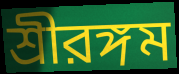
শ্রীরঙ্গম